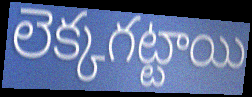
లెక్కగట్టాయి